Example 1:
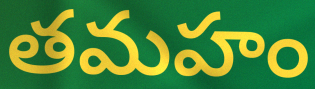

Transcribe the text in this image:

తమహం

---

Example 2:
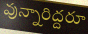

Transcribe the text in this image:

వున్నారిద్దరూ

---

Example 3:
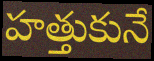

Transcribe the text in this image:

హత్తుకునే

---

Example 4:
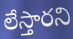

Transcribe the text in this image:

లేస్తారని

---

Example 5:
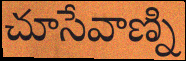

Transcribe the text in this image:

చూసేవాణ్ని